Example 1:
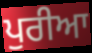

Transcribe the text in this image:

ਪੁਰੀਆ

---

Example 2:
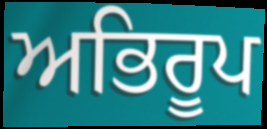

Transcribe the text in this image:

ਅਭਿਰੂਪ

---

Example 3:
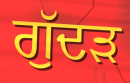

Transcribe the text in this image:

ਗੁੱਦੜ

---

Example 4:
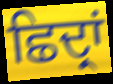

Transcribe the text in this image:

ਛਿਦ੍ਰਾਂ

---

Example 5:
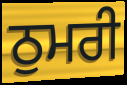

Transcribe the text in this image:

ਠੁਮਰੀ